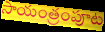
సాయంత్రంపూట